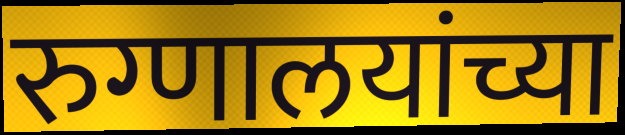
रुग्णालयांच्या